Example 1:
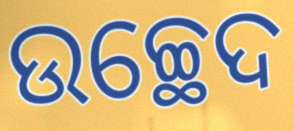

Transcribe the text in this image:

ଉଚ୍ଛେଦ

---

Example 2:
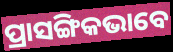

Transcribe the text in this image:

ପ୍ରାସଙ୍ଗିକଭାବେ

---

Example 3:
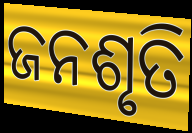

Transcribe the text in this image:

ଜନଶୃତି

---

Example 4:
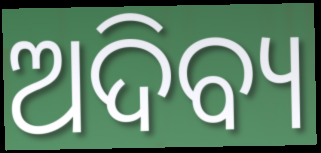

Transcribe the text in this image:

ଅଦିବ୍ୟ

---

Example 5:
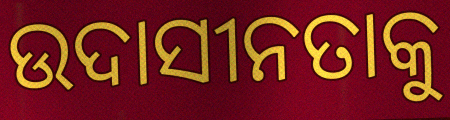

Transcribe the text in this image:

ଉଦାସୀନତାକୁ